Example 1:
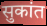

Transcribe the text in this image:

सुकांत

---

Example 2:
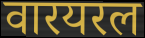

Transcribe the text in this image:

वारयरल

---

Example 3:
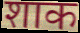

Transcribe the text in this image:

शाक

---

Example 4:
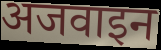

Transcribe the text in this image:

अजवाइन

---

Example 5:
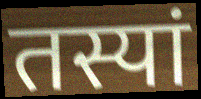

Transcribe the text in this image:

तस्यां